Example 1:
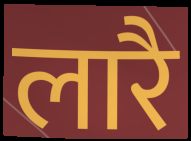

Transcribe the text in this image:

लारै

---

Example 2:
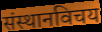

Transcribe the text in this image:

संस्थानविचय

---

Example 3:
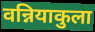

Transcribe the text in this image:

वन्नियाकुला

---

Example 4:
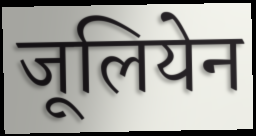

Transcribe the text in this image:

जूलियेन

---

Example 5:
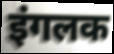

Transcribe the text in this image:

इंगलक